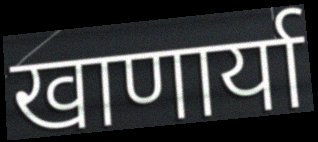
खाणार्या